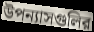
উপন্যাসগুলির